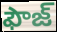
ఫౌజ్